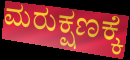
ಮರುಕ್ಷಣಕ್ಕೆ